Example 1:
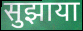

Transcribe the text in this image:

सुझाया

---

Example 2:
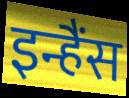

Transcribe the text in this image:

इन्हैंस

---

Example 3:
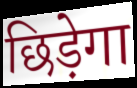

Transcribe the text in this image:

छिड़ेगा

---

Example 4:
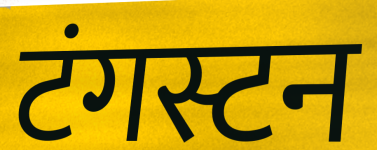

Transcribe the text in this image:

टंगस्टन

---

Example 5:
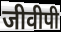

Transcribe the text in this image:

जीवीपी